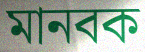
মানবক